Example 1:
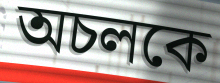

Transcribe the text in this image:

অচলকে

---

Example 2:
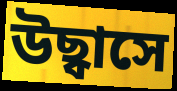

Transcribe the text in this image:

উছ্বাসে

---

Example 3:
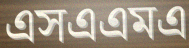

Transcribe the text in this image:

এসএএমএ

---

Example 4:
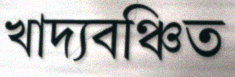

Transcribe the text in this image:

খাদ্যবঞ্চিত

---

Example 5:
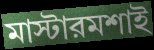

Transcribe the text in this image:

মাস্টারমশাই